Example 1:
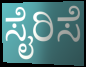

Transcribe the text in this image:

ಸೈರಿಸೆ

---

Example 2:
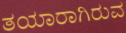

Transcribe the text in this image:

ತಯಾರಾಗಿರುವ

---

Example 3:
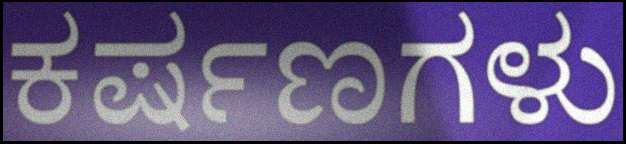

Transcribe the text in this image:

ಕರ್ಷಣಗಳು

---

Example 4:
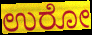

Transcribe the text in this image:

ಉರೋ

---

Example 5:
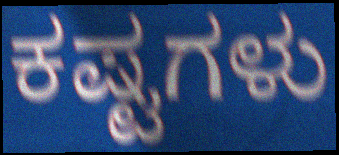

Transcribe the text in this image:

ಕಷ್ಟಗಳು